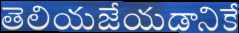
తెలియజేయడానికే